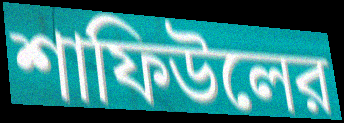
শাফিউলের